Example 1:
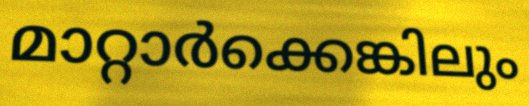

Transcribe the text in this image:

മാറ്റാർക്കെങ്കിലും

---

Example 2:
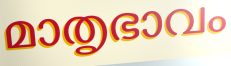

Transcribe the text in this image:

മാതൃഭാവം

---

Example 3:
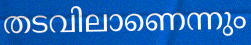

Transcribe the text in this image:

തടവിലാണെന്നും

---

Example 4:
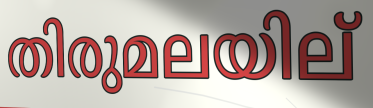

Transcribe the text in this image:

തിരുമലയില്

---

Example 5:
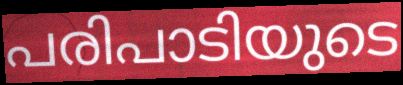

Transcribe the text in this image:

പരിപാടിയുടെ